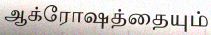
ஆக்ரோஷத்தையும்